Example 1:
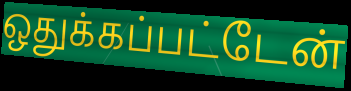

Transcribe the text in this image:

ஒதுக்கப்பட்டேன்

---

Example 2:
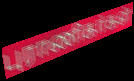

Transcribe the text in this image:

புராணிகர்கள்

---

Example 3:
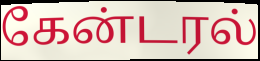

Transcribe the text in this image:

கேன்டரல்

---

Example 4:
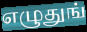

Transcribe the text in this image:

எழுதுங்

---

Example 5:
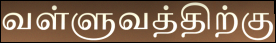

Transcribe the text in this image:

வள்ளுவத்திற்கு